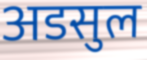
अडसुल